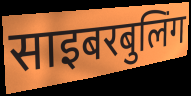
साइबरबुलिंग